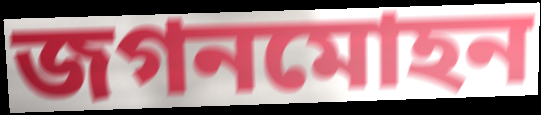
জগনমোহন